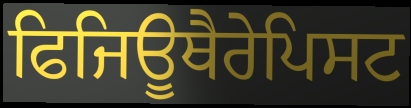
ਫਿਜਿਊਥੈਰੇਪਿਸਟ